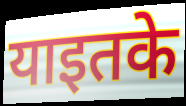
याइतके